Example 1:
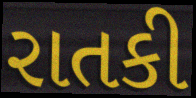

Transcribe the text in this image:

રાતકી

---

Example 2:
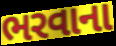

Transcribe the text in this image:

ભરવાના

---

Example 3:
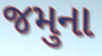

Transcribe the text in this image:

જમુના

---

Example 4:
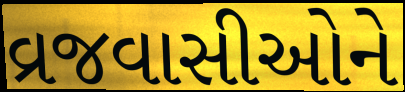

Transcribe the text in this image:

વ્રજવાસીઓને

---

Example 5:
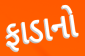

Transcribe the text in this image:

ફાડાનો